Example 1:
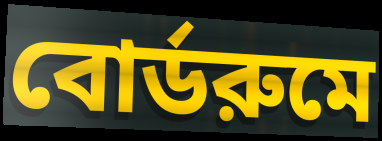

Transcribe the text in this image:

বোর্ডরুমে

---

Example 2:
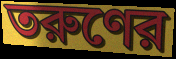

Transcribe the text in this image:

তরুণের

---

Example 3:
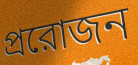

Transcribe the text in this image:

প্ররোজন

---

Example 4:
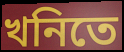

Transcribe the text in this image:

খনিতে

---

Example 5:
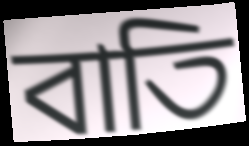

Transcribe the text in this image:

বাতি